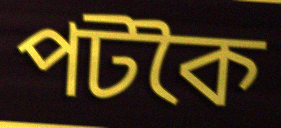
পটকৈ